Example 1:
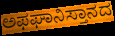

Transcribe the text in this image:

ಅಫಘಾನಿಸ್ತಾನದ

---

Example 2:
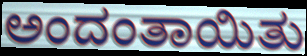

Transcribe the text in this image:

ಅಂದಂತಾಯಿತು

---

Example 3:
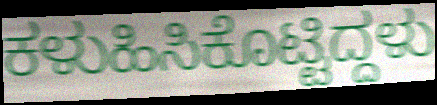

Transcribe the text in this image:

ಕಳುಹಿಸಿಕೊಟ್ಟಿದ್ದಳು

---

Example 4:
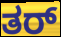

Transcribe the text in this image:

ತರ್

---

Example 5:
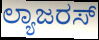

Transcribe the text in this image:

ಲ್ಯಾಜರಸ್